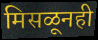
मिसळूनही